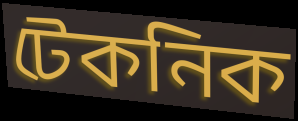
টেকনিক